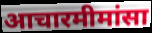
आचारमीमांसा